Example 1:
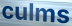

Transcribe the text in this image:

culms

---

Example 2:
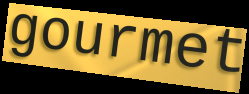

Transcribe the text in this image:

gourmet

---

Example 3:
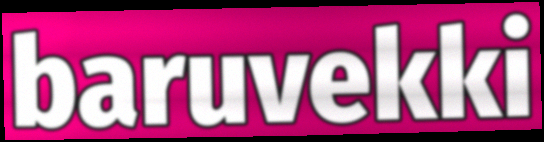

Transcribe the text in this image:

baruvekki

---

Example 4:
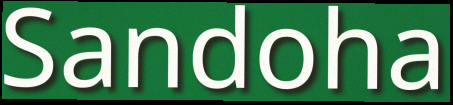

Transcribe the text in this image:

Sandoha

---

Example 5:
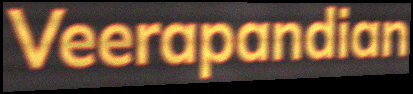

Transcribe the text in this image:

Veerapandian